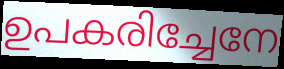
ഉപകരിച്ചേനേ